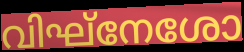
വിഘ്നേശോ